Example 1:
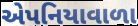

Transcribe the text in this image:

એપનિયાવાળા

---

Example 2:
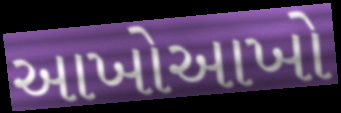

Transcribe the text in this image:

આખોઆખો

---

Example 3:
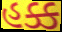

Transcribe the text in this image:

હક્ક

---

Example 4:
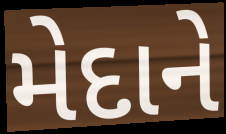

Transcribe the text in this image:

મેદાને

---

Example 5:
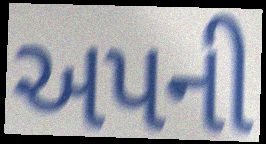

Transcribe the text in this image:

અપની